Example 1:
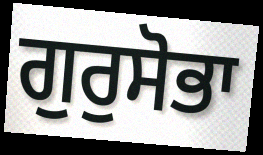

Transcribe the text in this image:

ਗੁਰੁਸੋਭਾ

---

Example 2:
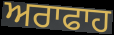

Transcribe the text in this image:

ਅਰਾਫਾਹ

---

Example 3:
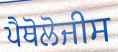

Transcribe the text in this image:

ਪੈਥੋਲੋਜੀਸ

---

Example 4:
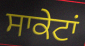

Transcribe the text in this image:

ਸਾਕੇਟਾਂ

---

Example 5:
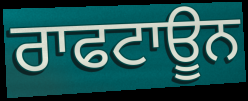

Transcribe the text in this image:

ਰਾਫਟਾਊਨ